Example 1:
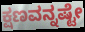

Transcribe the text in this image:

ಕ್ಷಣವನ್ನಷ್ಟೇ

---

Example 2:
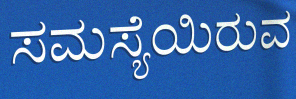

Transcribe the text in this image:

ಸಮಸ್ಯೆಯಿರುವ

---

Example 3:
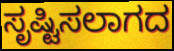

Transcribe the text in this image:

ಸೃಷ್ಟಿಸಲಾಗದ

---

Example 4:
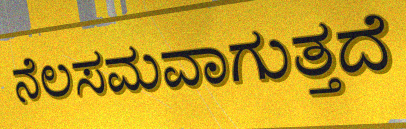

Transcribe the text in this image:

ನೆಲಸಮವಾಗುತ್ತದೆ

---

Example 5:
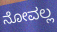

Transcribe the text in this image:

ನೋವಲ್ಲ